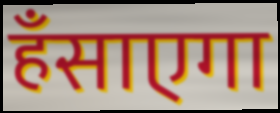
हँसाएगा